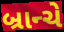
બ્રાન્ચે